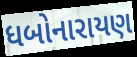
ધબોનારાયણ